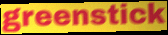
greenstick